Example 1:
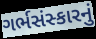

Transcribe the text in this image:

ગર્ભસંસ્કારનું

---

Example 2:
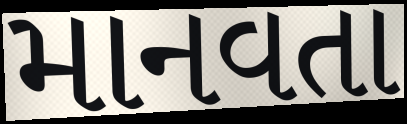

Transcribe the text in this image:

માનવતા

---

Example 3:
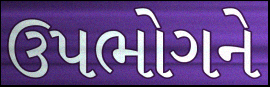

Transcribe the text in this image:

ઉપભોગને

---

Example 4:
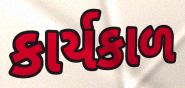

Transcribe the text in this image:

કાર્યકાળ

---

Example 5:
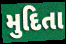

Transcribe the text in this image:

મુદિતા